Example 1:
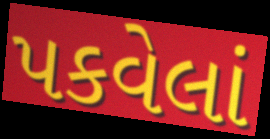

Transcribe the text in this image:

પકવેલાં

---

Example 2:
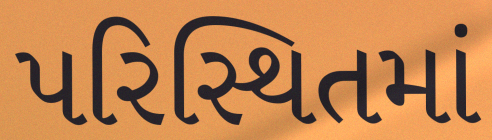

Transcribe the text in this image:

પરિસ્થિતમાં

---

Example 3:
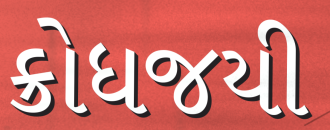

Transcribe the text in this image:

ક્રોધજયી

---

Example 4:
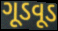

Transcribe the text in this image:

ગૂડવૂડ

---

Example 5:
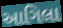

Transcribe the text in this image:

આગિલા